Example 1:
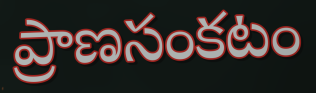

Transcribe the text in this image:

ప్రాణసంకటం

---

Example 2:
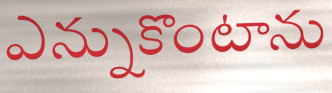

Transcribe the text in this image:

ఎన్నుకొంటాను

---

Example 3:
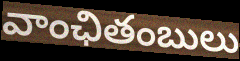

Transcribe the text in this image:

వాంఛితంబులు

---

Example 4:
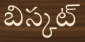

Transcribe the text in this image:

బిస్కట్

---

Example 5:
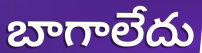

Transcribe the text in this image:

బాగాలేదు